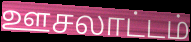
ஊசலாட்டம்